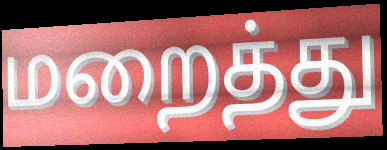
மறைத்து